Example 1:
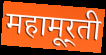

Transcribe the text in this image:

महामूर्ती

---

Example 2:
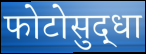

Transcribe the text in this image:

फोटोसुद्धा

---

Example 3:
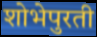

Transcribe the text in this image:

शोभेपुरती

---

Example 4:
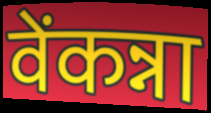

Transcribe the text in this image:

वेंकन्ना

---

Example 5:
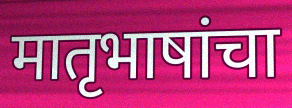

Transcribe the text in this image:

मातृभाषांचा